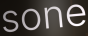
sone